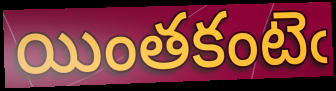
యింతకంటెఁ